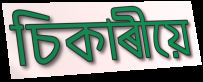
চিকাৰীয়ে